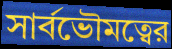
সার্বভৌমত্বের